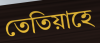
তেতিয়াহে